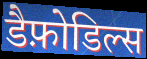
डैफ़ोडिल्स